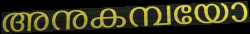
അനുകമ്പയോ